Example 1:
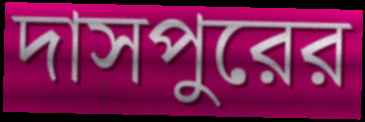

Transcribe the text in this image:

দাসপুরের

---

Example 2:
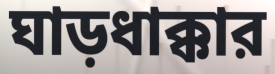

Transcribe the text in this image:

ঘাড়ধাক্কার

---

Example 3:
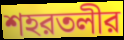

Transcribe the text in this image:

শহরতলীর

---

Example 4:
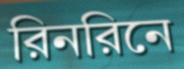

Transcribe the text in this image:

রিনরিনে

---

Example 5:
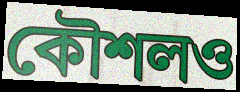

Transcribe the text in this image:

কৌশলও